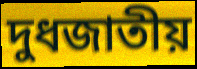
দুধজাতীয়